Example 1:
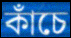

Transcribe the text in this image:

কাঁচে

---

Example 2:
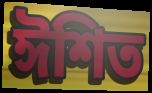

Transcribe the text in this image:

ঈশিত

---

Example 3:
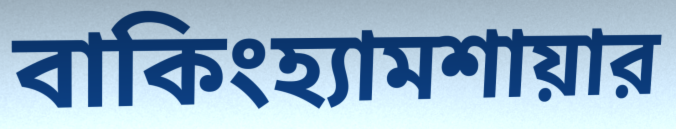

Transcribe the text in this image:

বাকিংহ্যামশায়ার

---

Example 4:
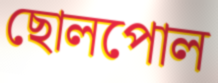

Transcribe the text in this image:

ছোলপোল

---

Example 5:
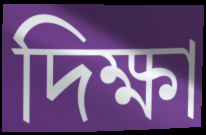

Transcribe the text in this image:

দিক্ষা